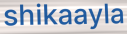
shikaayla